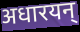
अधारयन्